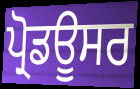
ਪ੍ਰੋਡਊਸਰ